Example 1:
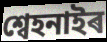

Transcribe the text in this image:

শ্বেহনাইৰ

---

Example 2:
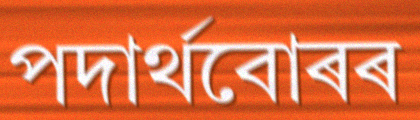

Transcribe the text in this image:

পদাৰ্থবোৰৰ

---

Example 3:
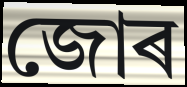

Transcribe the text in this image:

জোৰ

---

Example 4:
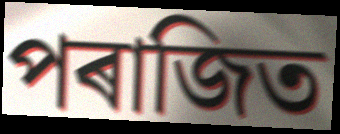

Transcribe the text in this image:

পৰাজিত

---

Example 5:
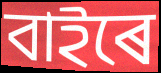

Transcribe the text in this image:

বাইৰে